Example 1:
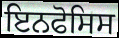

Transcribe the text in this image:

ਇਨਫੋਸਿਸ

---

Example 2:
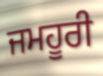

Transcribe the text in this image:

ਜਮਹੂਰੀ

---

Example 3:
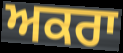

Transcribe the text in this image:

ਅਕਰਾ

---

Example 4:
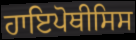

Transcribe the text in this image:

ਹਾਇਪੋਥੀਸਿਸ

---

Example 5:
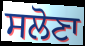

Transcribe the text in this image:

ਸਲੋਣਾ